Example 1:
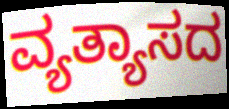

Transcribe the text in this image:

ವ್ಯತ್ಯಾಸದ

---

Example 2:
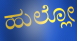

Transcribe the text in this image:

ಹುಲ್ಲೋ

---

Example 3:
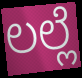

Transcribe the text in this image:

ಲಲ್ಲೆ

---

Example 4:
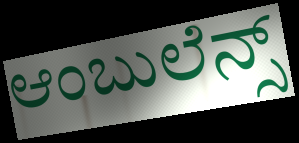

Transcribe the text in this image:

ಆಂಬುಲೆನ್ಸ್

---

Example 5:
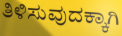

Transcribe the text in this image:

ತಿಳಿಸುವುದಕ್ಕಾಗಿ